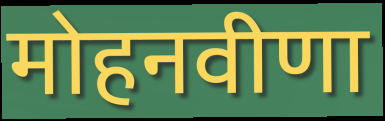
मोहनवीणा